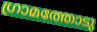
ഗ്രാമത്തോടു